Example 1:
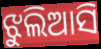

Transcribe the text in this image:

ଝୁଲିଆସି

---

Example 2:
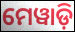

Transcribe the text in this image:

ମେୱାଡ଼ି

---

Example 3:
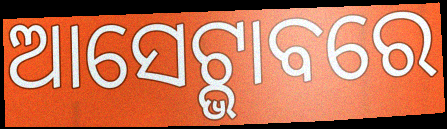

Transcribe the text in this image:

ଆସେଟ୍ଭାବରେ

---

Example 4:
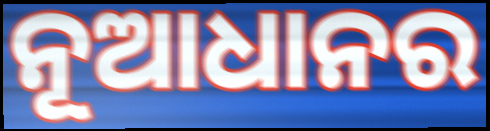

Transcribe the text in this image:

ନୂଆଧାନର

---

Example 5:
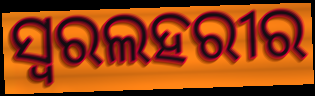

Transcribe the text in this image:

ସ୍ୱରଲହରୀର